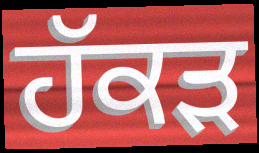
ਹੱਕੜ